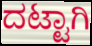
ದಟ್ಟಾಗಿ